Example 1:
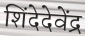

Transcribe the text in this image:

शिंदेदेवेंद्र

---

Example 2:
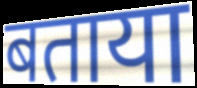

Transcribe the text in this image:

बताया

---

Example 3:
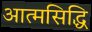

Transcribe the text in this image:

आत्मसिद्धि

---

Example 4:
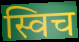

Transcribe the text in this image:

स्विच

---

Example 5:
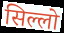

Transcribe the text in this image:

सिल्लो